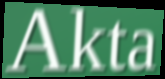
Akta